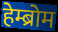
हेम्ब्रोम